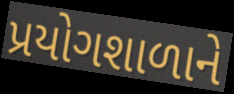
પ્રયોગશાળાને